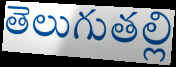
తెలుగుతల్లి